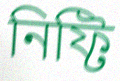
নিফ্টি